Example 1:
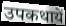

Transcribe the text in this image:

उपकथायें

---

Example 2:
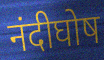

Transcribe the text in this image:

नंदीघोष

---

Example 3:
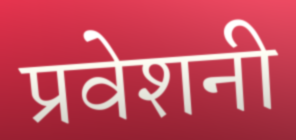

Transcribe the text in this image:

प्रवेशनी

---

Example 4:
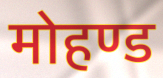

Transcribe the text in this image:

मोहण्ड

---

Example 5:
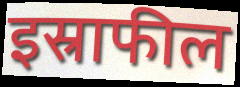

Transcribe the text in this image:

इस्राफील